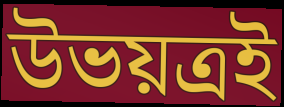
উভয়ত্রই